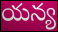
యన్య